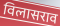
विलासराव